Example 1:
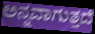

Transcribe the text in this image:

ಅನ್ನವಾಗುತ್ತದೆ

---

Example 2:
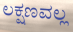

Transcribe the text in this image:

ಲಕ್ಷಣವಲ್ಲ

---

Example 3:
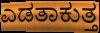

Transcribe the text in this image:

ಎಡತಾಕುತ್ತ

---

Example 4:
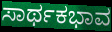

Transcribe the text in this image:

ಸಾರ್ಥಕಭಾವ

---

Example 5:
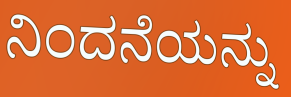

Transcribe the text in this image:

ನಿಂದನೆಯನ್ನು